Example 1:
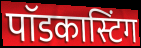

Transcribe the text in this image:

पॉडकास्टिंग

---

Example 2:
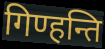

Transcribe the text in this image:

गिण्हन्ति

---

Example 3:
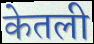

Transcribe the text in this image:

केतली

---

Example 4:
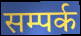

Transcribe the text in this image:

सम्‍पर्क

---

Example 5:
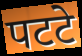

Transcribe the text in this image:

पटटे